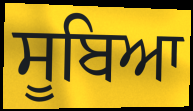
ਸੂਬਿਆ